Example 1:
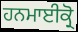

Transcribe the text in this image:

ਹਨਮਾਈਕ੍ਰੋ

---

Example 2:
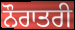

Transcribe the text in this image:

ਨੌਰਾਤਰੀ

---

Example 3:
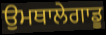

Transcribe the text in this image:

ਉਮਥਾਲੇਗਾਡੂ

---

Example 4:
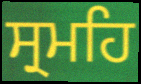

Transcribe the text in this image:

ਸ੍ਰਮਹਿ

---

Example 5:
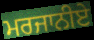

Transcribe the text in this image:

ਮਰਜਾਨੀਏ